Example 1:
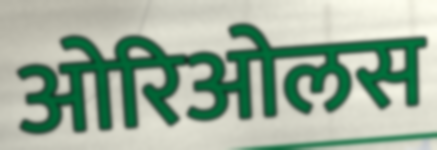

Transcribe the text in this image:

ओरिओलस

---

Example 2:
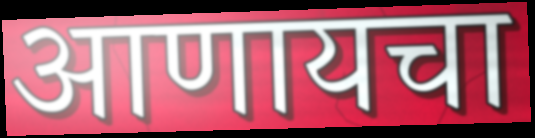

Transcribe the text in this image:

आणायचा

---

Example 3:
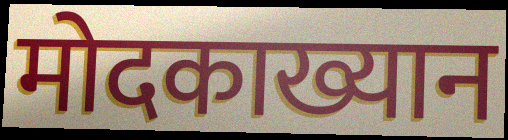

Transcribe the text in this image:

मोदकाख्यान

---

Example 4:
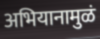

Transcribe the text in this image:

अभियानामुळं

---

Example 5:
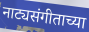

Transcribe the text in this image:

नाट्यसंगीताच्या